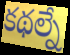
కథల్నే